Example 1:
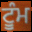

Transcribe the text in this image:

ਟੂੰਮ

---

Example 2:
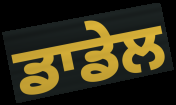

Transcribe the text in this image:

ਡਾਡੇਲ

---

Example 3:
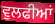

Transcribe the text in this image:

ਵੁਲਫੀਆਂ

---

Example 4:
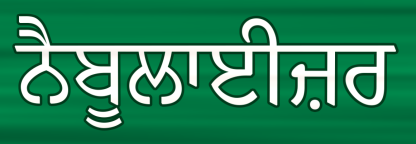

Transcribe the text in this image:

ਨੈਬੂਲਾਈਜ਼ਰ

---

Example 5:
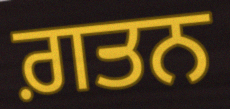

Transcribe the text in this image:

ਗ਼ਤਨ